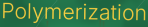
Polymerization